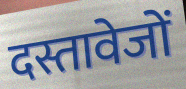
दस्तावेजों